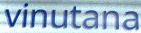
vinutana